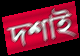
দশাই